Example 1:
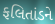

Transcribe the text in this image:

ફલિતાંડને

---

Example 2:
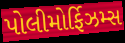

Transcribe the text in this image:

પોલીમોર્ફિઝમ્સ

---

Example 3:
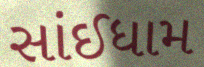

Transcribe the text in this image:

સાંઈધામ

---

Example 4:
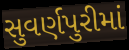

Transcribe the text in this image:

સુવર્ણપુરીમાં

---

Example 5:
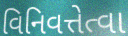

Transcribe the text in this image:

વિનિવત્તેત્વા